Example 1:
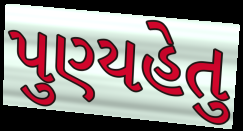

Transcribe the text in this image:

પુણ્યહેતુ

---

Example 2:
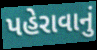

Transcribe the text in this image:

પહેરાવાનું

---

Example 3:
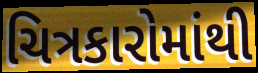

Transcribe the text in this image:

ચિત્રકારોમાંથી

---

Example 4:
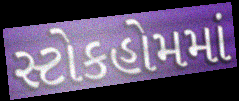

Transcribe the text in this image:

સ્ટોકહોમમાં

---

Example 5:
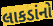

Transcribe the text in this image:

લાકડાંનો